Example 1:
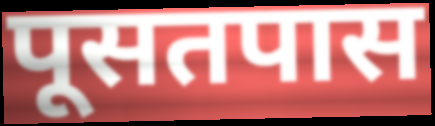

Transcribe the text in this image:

पूसतपास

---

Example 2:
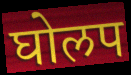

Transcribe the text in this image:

घोलप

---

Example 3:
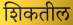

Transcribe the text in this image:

शिकतील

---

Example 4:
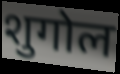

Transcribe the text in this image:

शुगोल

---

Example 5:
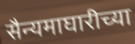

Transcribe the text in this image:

सैन्यमाघारीच्या